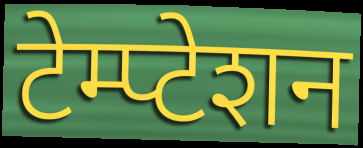
टेम्प्टेशन